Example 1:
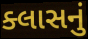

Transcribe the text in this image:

ક્લાસનું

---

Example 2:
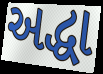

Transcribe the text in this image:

અદ્ધા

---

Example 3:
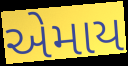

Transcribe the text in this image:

એમાય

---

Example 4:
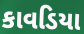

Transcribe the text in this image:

કાવડિયા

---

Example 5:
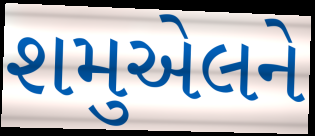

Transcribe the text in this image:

શમુએલને